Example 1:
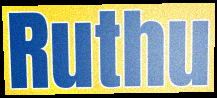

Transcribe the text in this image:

Ruthu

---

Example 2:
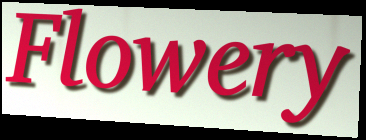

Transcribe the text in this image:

Flowery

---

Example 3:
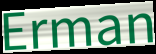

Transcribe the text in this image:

Erman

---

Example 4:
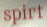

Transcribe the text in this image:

spirt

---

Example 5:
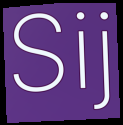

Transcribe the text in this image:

Sij